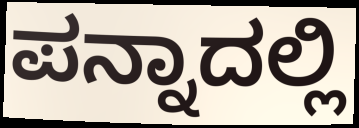
ಪನ್ನಾದಲ್ಲಿ